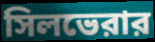
সিলভেরার